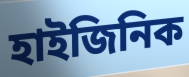
হাইজিনিক